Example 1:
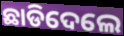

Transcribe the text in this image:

ଛାଡିଦେଲେ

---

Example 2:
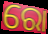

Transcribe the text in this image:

ରୋ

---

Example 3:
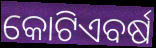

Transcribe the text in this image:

କୋଟିଏବର୍ଷ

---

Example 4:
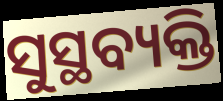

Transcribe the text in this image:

ସୁସ୍ଥବ୍ୟକ୍ତି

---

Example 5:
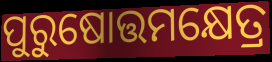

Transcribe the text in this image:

ପୁରୁଷୋତ୍ତମକ୍ଷେତ୍ର